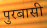
पुरबासी